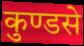
कुण्डसे